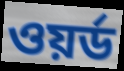
ওয়র্ড